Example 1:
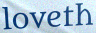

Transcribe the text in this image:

loveth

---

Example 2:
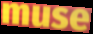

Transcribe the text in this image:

muse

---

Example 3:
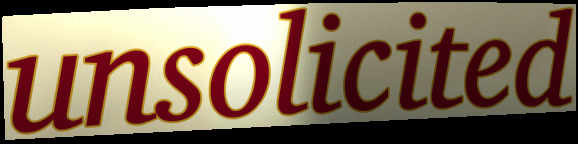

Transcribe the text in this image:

unsolicited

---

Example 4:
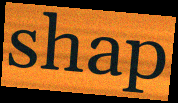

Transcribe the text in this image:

shap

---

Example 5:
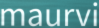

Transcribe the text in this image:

maurvi